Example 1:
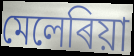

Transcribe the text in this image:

মেলেৰিয়া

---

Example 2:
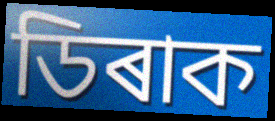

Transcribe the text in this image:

ডিৰাক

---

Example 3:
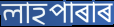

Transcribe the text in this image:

লাহপাৰাৰ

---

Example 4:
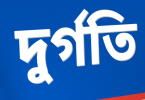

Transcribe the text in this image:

দুৰ্গতি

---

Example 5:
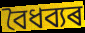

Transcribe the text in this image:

বৈধব্যৰ